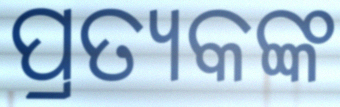
ପ୍ରତ୍ୟକଙ୍କ